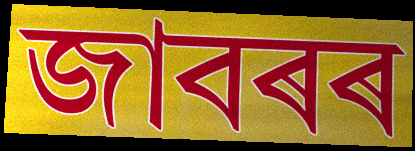
জাবৰৰ